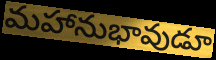
మహానుభావుడూ